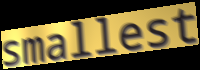
smallest